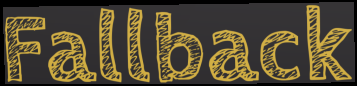
Fallback